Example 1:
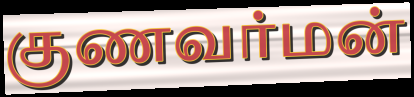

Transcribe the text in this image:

குணவர்மன்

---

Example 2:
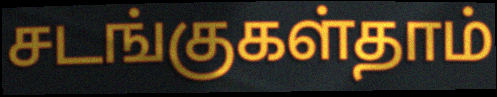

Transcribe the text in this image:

சடங்குகள்தாம்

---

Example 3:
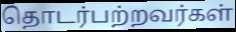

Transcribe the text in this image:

தொடர்பற்றவர்கள்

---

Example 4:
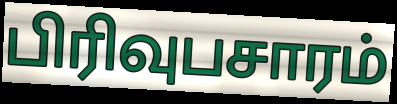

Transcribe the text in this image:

பிரிவுபசாரம்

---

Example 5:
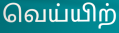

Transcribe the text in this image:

வெய்யிற்